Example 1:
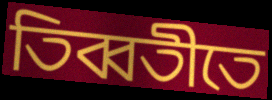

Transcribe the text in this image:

তিব্বতীতে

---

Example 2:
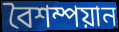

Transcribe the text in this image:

বৈশম্পয়ান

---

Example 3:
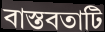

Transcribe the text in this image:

বাস্তবতাটি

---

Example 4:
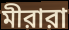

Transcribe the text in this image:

মীরারা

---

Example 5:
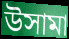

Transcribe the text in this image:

উসামা